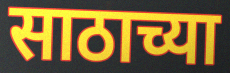
साठाच्या